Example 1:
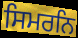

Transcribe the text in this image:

ਸਿਮਰਨਿ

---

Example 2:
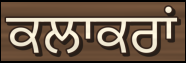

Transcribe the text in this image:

ਕਲਾਕਰਾਂ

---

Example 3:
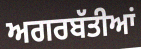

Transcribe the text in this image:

ਅਗਰਬੱਤੀਆਂ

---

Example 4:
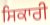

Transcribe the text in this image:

ਸਿਕਾਰੀ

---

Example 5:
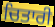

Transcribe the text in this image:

ਚਿਤਾਰੀ